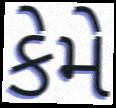
કેમે